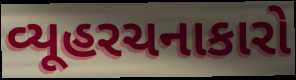
વ્યૂહરચનાકારો